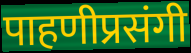
पाहणीप्रसंगी